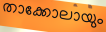
താക്കോലായും